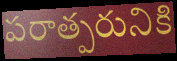
పరాత్పరునికి